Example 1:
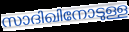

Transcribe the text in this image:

സാദിഖിനോടുള്ള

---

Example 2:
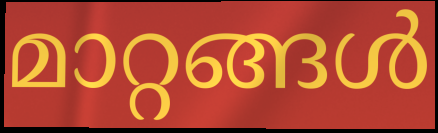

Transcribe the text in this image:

മാറ്റങ്ങൾ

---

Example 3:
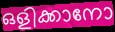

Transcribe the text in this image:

ഒളിക്കാനോ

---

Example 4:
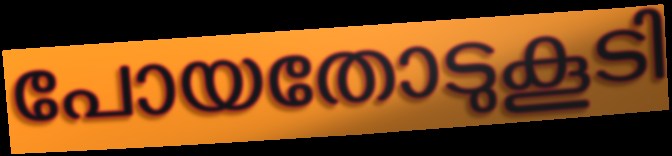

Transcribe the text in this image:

പോയതോടുകൂടി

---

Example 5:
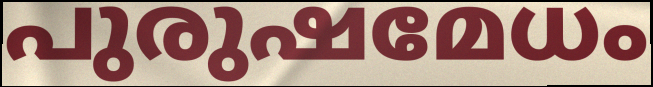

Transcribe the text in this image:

പുരുഷമേധം